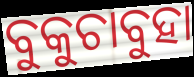
ବୁକୁଚାବୁହା